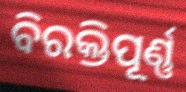
ବିରକ୍ତିପୂର୍ଣ୍ଣ